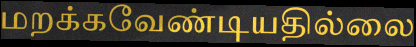
மறக்கவேண்டியதில்லை